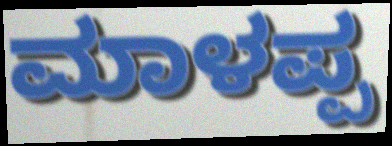
ಮಾಳಪ್ಪ